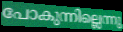
പോകുന്നില്ലെന്നു